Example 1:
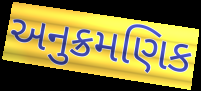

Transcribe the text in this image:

અનુક્રમણિક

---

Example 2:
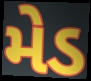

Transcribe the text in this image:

મેડ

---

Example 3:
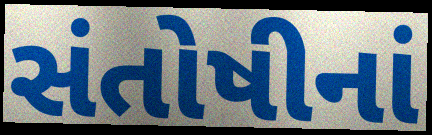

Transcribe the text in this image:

સંતોષીનાં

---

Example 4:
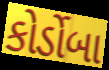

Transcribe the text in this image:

કોર્ડોબા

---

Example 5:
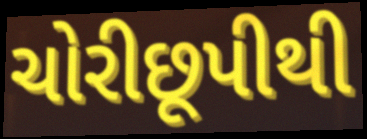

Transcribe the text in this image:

ચોરીછૂપીથી